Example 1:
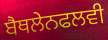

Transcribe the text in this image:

ਬੈਥਲੇਨਫਲਵੀ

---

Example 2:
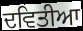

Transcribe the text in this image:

ਦਵਿਤੀਆ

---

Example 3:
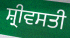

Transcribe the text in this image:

ਸ਼੍ਰੀਵਸਤੀ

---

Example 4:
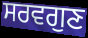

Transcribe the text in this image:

ਸਰਵਗੁਣ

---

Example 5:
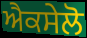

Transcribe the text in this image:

ਐਕਸੇਲੋ